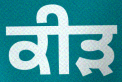
ਕੀੜ